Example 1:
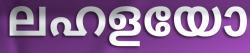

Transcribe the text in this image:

ലഹളയോ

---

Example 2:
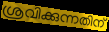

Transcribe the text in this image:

ശ്രവിക്കുന്നതിന്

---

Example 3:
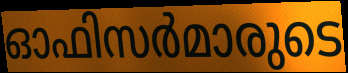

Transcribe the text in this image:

ഓഫിസർമാരുടെ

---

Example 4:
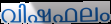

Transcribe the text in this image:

വിഷഫലം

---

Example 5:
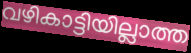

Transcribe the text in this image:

വഴികാട്ടിയില്ലാത്ത